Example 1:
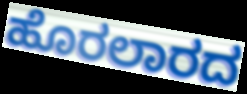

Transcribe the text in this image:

ಹೊರಲಾರದ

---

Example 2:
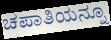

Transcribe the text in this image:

ಚಪಾತಿಯನ್ನೂ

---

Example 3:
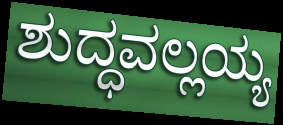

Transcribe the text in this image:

ಶುದ್ಧವಲ್ಲಯ್ಯ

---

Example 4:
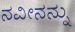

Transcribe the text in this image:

ನವೀನನ್ನು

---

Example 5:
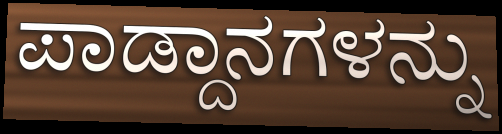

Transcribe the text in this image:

ಪಾಡ್ದಾನಗಳನ್ನು